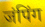
जंपिंग